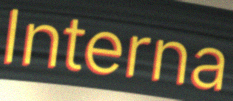
Interna